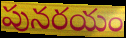
పునరయం